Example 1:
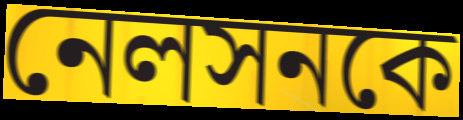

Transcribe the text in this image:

নেলসনকে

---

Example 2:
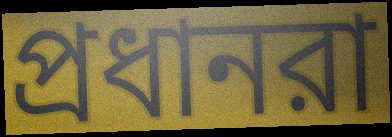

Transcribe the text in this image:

প্রধানরা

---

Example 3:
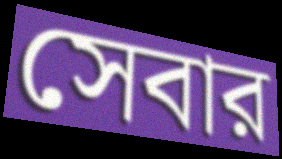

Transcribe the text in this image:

সেবার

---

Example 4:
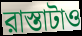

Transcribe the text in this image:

রাস্তাটাও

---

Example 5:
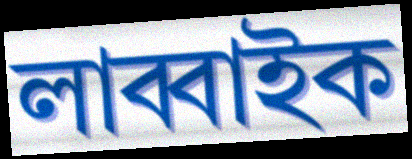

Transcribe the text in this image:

লাব্বাইক